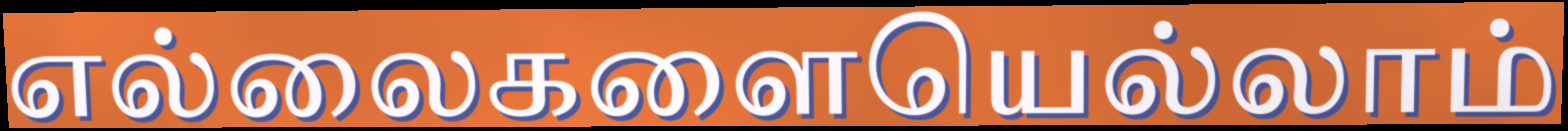
எல்லைகளையெல்லாம்